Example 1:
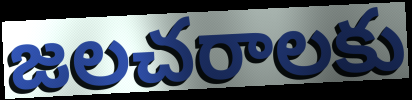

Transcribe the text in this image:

జలచరాలకు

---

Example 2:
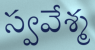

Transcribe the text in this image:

స్వవేశ్మ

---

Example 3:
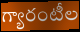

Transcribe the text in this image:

గ్యారంటీల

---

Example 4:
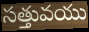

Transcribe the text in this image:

సత్తువయు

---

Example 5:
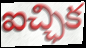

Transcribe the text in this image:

ఐచ్ఛిక